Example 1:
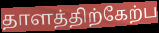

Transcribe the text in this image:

தாளத்திற்கேற்ப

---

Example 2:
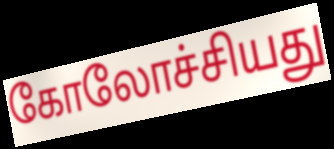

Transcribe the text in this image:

கோலோச்சியது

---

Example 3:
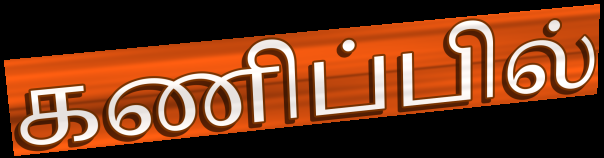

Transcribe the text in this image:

கணிப்பில்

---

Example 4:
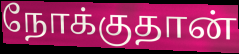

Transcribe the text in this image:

நோக்குதான்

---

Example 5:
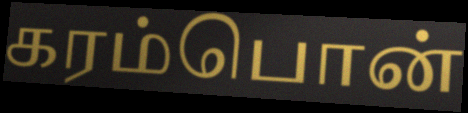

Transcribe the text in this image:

கரம்பொன்